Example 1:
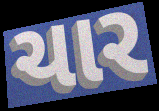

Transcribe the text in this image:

ચાર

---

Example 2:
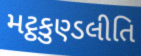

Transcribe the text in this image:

મટ્ઠકુણ્ડલીતિ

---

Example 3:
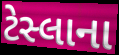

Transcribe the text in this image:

ટેસ્લાના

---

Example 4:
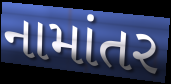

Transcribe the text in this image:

નામાંતર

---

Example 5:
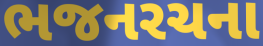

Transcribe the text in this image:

ભજનરચના